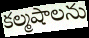
కల్మషాలను